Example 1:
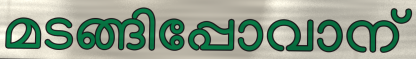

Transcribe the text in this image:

മടങ്ങിപ്പോവാന്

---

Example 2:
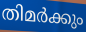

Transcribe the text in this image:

തിമർക്കും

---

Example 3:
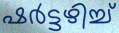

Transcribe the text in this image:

ഷർട്ടഴിച്ച്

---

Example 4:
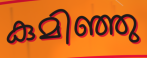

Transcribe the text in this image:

കുമിഞ്ഞു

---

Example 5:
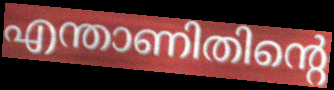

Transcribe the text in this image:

എന്താണിതിന്റെ